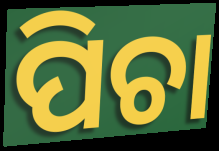
ପିଚା